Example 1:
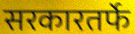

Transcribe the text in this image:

सरकारतर्फे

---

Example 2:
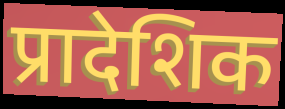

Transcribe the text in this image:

प्रादेशिक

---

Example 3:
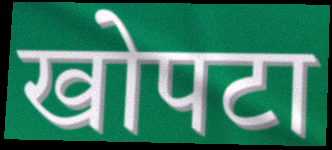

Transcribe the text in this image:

खोपटा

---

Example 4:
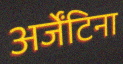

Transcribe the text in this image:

अर्जेंटिना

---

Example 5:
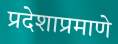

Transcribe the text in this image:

प्रदेशाप्रमाणे